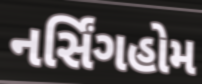
નર્સિંગહોમ